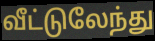
வீட்டுலேந்து